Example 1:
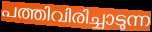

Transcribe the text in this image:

പത്തിവിരിച്ചാടുന്ന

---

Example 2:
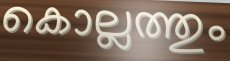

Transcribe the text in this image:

കൊല്ലത്തും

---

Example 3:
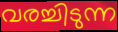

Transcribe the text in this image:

വരച്ചിടുന്ന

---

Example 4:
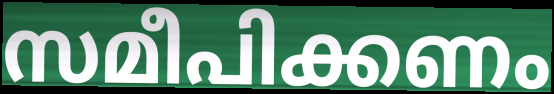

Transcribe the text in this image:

സമീപിക്കണം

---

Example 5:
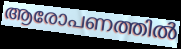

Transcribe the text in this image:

ആരോപണത്തിൽ